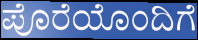
ಪೊರೆಯೊಂದಿಗೆ